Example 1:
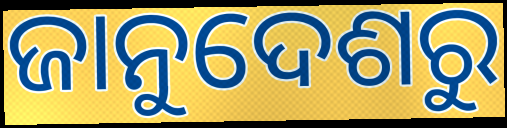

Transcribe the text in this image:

ଜାନୁଦେଶରୁ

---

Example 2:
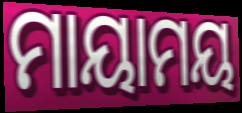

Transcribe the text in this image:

ମାୟାମୟ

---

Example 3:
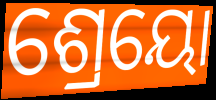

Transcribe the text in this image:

ଶ୍ରେୟୋ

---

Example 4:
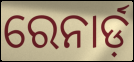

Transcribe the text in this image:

ରେନାର୍ଡ଼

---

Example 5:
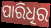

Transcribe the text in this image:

ପାରିଧିର